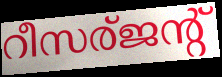
റീസര്ജന്റ്